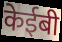
केईबी